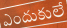
ఎందుకులే